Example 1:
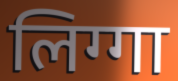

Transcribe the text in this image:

लिग्गा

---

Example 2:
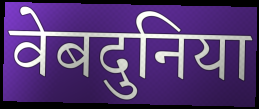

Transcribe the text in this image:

वेबदुनिया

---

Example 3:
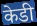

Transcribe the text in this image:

केडी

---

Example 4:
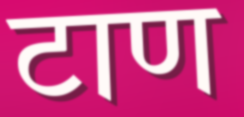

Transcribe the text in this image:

टाण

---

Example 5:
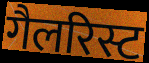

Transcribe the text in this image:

गैलरिस्ट